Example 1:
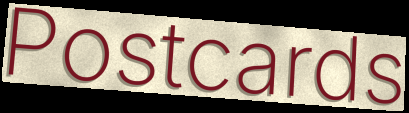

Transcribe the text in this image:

Postcards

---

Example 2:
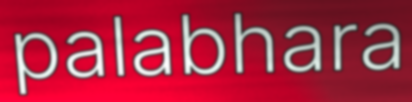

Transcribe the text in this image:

palabhara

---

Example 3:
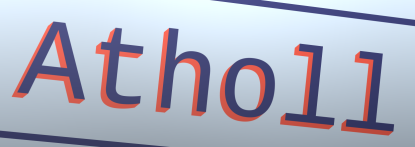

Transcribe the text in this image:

Atholl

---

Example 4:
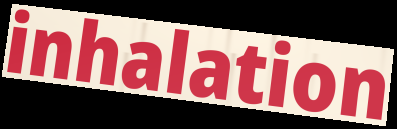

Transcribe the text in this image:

inhalation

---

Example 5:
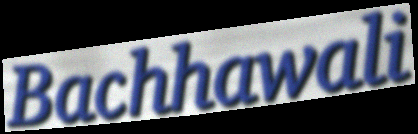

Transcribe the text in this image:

Bachhawali